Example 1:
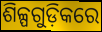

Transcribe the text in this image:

ଶିଳ୍ପଗୁଡ଼ିକରେ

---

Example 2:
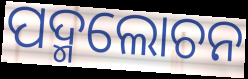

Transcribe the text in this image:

ପଦ୍ମଲୋଚନ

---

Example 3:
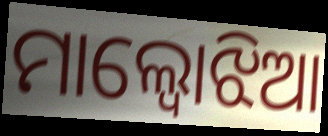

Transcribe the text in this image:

ମାଲ୍ବୋଝିଆ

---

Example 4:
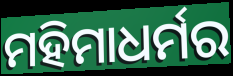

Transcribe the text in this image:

ମହିମାଧର୍ମର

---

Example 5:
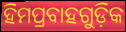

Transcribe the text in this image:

ହିମପ୍ରବାହଗୁଡ଼ିକ